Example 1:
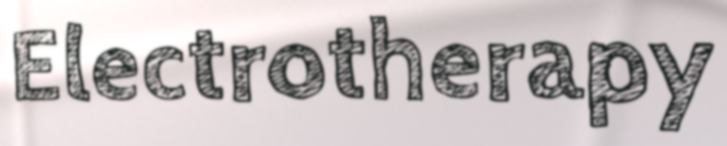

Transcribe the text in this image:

Electrotherapy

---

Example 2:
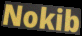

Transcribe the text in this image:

Nokib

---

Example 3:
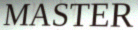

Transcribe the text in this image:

MASTER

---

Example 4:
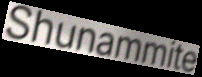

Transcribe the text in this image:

Shunammite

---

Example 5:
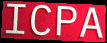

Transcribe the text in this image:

ICPA